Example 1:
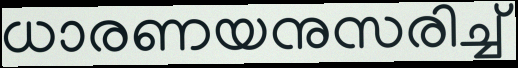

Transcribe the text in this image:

ധാരണയനുസരിച്ച്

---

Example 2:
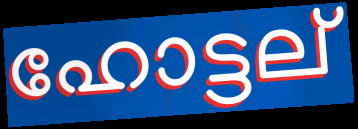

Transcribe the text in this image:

ഹോട്ടല്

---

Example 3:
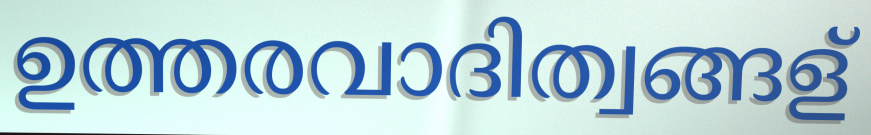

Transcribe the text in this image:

ഉത്തരവാദിത്വങ്ങള്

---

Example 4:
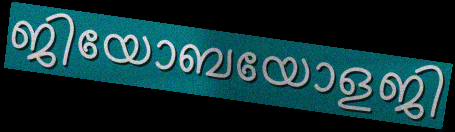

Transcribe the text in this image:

ജിയോബയോളജി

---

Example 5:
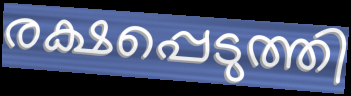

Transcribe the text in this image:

രക്ഷപ്പെടുത്തി